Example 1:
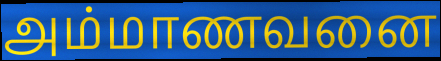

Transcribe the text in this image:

அம்மாணவனை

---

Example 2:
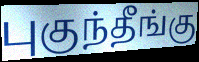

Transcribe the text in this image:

புகுந்தீங்கு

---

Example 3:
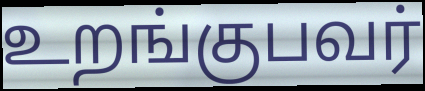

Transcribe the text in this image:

உறங்குபவர்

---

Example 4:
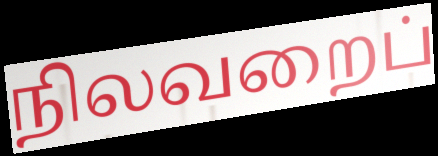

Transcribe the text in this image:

நிலவறைப்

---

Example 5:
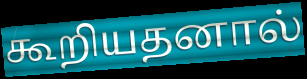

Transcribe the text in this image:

கூறியதனால்